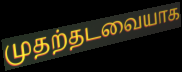
முதற்தடவையாக